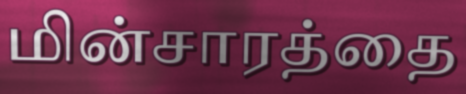
மின்சாரத்தை